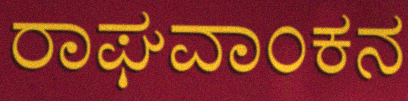
ರಾಘವಾಂಕನ